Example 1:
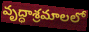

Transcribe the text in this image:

వృద్ధాశ్రమాలలో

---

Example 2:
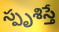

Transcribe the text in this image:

స్పృశిస్తే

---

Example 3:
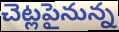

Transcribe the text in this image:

చెట్లపైనున్న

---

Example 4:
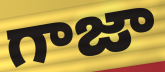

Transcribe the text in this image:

గాజా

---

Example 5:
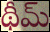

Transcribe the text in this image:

థీమ్